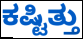
ಕಷ್ಟಿತ್ತು